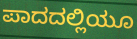
ಪಾದದಲ್ಲಿಯೂ